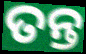
ତନ୍ତ